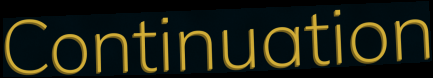
Continuation